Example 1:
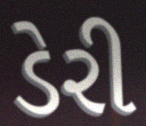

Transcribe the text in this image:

ડેરી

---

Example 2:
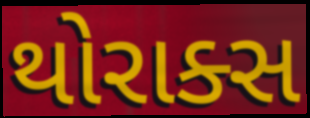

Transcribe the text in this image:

થોરાક્સ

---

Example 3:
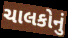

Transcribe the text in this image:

ચાલકોનું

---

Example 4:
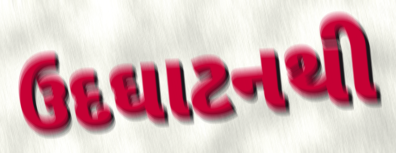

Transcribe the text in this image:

ઉદઘાટનથી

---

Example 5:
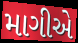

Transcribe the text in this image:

માગીએ